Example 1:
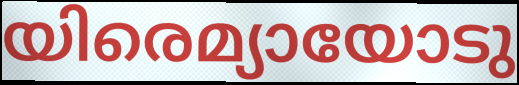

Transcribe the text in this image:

യിരെമ്യായോടു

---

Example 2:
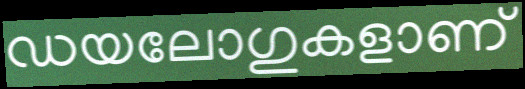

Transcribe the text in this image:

ഡയലോഗുകളാണ്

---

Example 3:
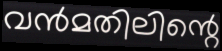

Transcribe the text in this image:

വൻമതിലിന്റെ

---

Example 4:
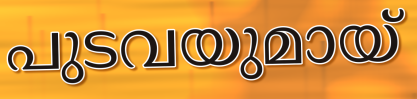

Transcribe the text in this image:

പുടവയുമായ്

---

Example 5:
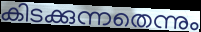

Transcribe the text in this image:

കിടക്കുന്നതെന്നും